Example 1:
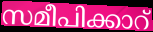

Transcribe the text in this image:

സമീപിക്കാറ്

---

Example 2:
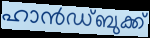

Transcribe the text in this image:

ഹാൻഡ്ബുക്ക്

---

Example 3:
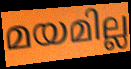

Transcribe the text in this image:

മയമില്ല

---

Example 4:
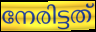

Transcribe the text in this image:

നേരിട്ടത്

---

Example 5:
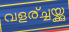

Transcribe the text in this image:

വളര്ച്ചയ്ക്കു